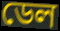
ডেল